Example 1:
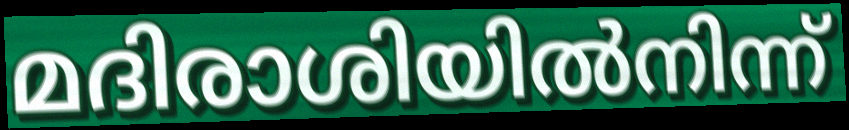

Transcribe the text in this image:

മദിരാശിയിൽനിന്ന്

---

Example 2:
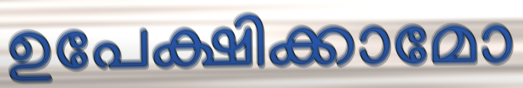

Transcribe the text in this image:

ഉപേക്ഷിക്കാമോ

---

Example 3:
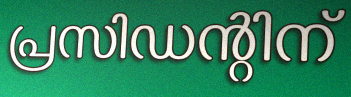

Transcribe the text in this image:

പ്രസിഡന്റിന്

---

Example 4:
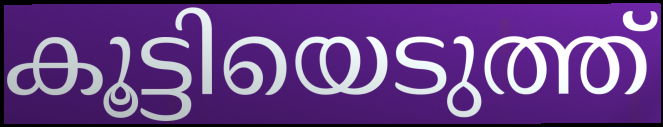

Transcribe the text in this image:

കൂട്ടിയെടുത്ത്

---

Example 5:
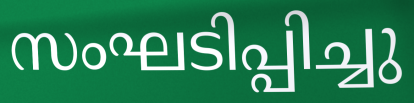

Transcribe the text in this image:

സംഘടിപ്പിച്ചു